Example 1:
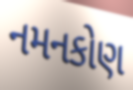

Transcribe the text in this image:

નમનકોણ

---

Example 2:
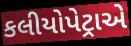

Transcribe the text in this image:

કલીયોપેટ્રાએ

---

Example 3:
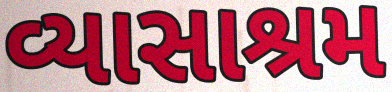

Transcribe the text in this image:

વ્યાસાશ્રમ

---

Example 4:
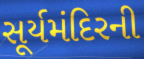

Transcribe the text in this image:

સૂર્યમંદિરની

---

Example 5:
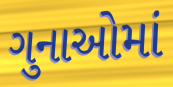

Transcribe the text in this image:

ગુનાઓમાં